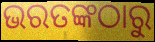
ଭରତଙ୍କଠାରୁ